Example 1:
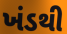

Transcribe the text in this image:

ખંડથી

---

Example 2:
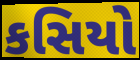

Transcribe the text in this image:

કસિયો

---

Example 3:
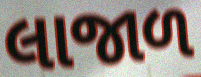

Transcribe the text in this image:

લાજાળ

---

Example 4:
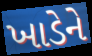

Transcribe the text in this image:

ખાડેને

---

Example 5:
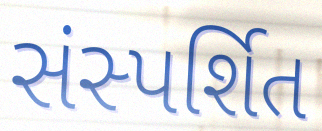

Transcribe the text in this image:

સંસ્પર્શિત